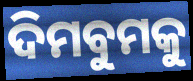
ଦିମବୁମକୁ